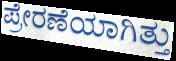
ಪ್ರೇರಣೆಯಾಗಿತ್ತು